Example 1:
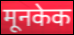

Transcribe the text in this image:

मूनकेक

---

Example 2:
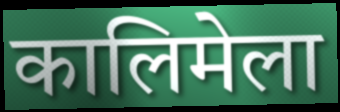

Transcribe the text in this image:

कालिमेला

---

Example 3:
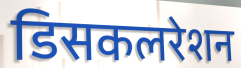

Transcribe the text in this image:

डिसकलरेशन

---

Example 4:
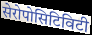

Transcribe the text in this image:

सेरोपोसिटिविटी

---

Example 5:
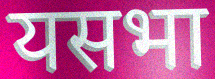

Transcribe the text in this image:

यसभा